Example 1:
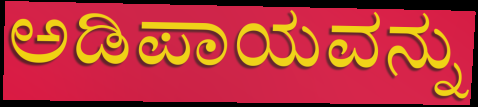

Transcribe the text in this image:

ಅಡಿಪಾಯವನ್ನು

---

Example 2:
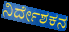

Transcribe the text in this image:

ನಿರ್ದೇಶಕನ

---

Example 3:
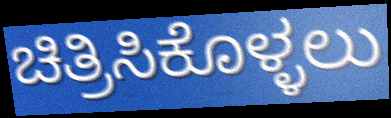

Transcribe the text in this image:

ಚಿತ್ರಿಸಿಕೊಳ್ಳಲು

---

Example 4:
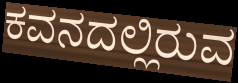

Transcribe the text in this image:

ಕವನದಲ್ಲಿರುವ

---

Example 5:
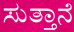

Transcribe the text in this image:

ಸುತ್ತಾನೆ